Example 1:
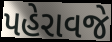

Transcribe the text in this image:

પહેરાવજે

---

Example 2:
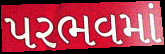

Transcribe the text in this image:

પરભવમાં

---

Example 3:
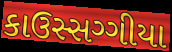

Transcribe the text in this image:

કાઉસ્સગ્ગીયા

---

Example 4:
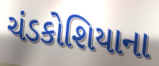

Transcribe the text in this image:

ચંડકોશિયાના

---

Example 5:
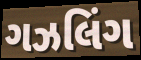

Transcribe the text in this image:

ગઝલિંગ